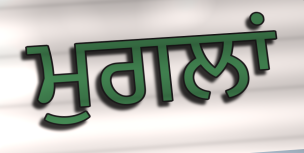
ਮੁਗਲਾਂ